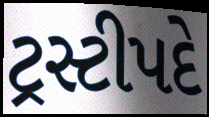
ટ્રસ્ટીપદે